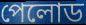
পেলোড